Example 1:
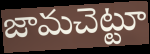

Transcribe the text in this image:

జామచెట్టూ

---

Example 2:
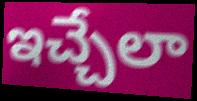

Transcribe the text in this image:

ఇచ్చేలా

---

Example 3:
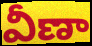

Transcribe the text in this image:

వీణా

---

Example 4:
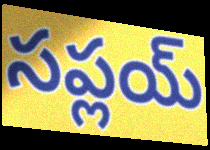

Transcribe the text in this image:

సప్లయ్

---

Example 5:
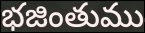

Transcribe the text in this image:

భజింతుము